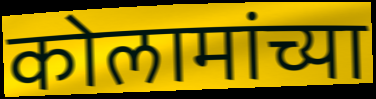
कोलामांच्या